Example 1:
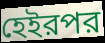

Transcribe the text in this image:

হেইরপর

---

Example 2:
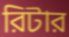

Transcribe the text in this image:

রিটার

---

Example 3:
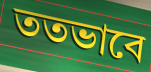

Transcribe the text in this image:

ততভাবে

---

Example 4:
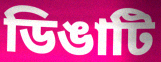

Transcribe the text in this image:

ডিঙাটি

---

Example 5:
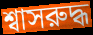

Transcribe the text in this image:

শ্বাসরুদ্ধ